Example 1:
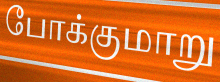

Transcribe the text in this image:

போக்குமாறு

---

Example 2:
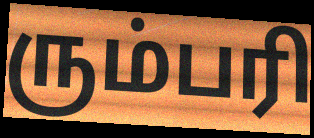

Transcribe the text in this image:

ரும்பரி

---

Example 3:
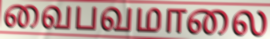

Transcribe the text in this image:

வைபவமாலை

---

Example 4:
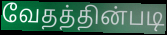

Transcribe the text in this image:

வேதத்தின்படி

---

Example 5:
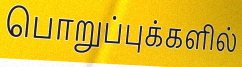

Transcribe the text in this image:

பொறுப்புக்களில்